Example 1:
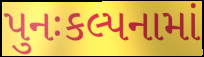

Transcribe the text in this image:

પુનઃકલ્પનામાં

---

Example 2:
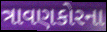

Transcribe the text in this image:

ત્રાવણકોરના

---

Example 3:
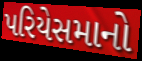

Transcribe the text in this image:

પરિયેસમાનો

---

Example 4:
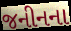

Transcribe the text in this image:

જનીનના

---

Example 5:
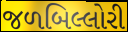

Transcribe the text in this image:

જળબિલ્લોરી